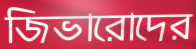
জিভারোদের